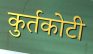
कुर्तकोटी